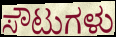
ಸೌಟುಗಳು